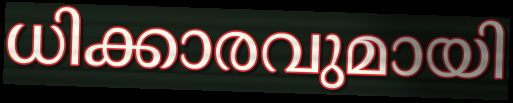
ധിക്കാരവുമായി